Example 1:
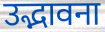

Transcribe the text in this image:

उद्भावना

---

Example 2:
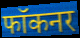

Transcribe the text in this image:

फॉकनर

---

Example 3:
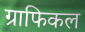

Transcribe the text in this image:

ग्राफिकल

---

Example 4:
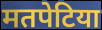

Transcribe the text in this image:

मतपेटिया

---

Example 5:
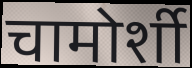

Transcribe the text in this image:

चामोर्शी